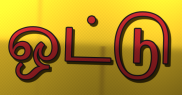
ஒட்டு